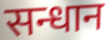
सन्धान